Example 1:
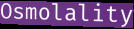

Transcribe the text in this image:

Osmolality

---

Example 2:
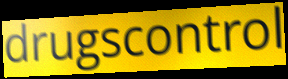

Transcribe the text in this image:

drugscontrol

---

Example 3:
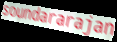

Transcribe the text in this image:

soundararajan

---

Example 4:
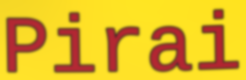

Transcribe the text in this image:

Pirai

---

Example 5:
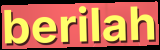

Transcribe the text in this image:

berilah